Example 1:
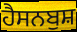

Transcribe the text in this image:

ਹੈਸਨਬੁਸ਼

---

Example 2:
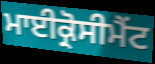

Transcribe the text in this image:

ਮਾਈਕ੍ਰੋਸੀਮੈਂਟ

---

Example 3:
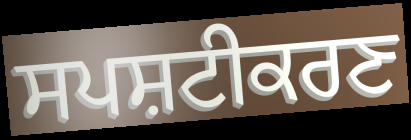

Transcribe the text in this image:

ਸਪਸ਼ਟੀਕਰਣ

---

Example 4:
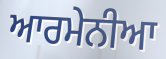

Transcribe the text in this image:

ਆਰਮੇਨੀਆ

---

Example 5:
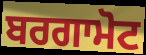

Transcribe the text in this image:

ਬਰਗਾਮੋਟ